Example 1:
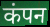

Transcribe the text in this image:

कंपन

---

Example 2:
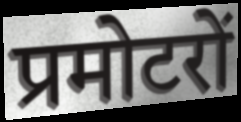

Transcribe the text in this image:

प्रमोटरों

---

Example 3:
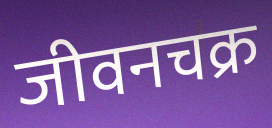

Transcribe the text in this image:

जीवनचक्र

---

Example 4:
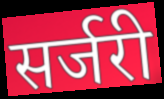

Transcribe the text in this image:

सर्जरी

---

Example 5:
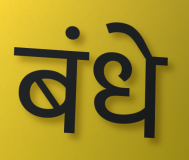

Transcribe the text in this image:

बंधे